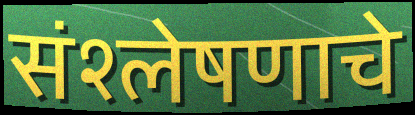
संश्लेषणाचे